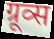
ग्रूव्स